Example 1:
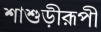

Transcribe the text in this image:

শাশুড়ীরূপী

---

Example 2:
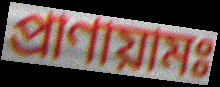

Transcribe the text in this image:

প্রাণায়ামঃ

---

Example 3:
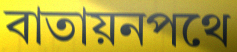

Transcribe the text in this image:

বাতায়নপথে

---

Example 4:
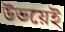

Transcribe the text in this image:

উভয়েই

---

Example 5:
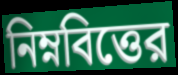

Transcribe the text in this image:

নিম্নবিত্তের